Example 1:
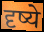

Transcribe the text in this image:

दृष्ये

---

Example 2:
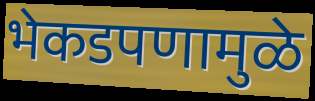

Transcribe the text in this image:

भेकडपणामुळे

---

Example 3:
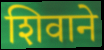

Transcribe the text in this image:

शिवाने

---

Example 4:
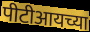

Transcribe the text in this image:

पीटीआयच्या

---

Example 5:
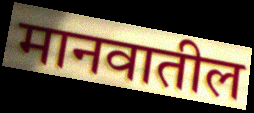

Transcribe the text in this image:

मानवातील